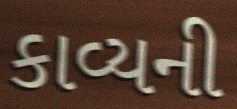
કાવ્યની